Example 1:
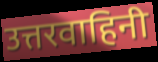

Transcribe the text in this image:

उत्तरवाहिनी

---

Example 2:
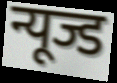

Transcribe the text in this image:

न्यूज्ड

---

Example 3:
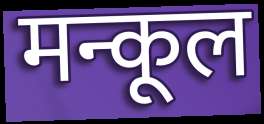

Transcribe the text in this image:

मन्कूल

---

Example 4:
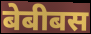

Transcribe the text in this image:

बेबीबस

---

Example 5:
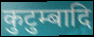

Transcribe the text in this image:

कुटुम्बादि